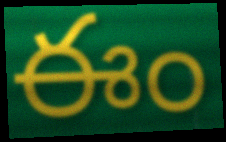
ఈం